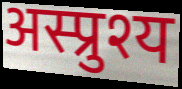
अस्प्रुश्य